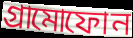
গ্ৰামোফোন